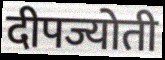
दीपज्योती